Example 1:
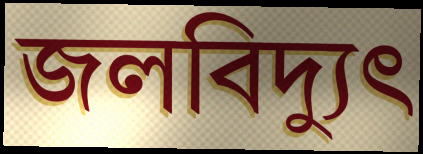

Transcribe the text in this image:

জলবিদ্যুৎ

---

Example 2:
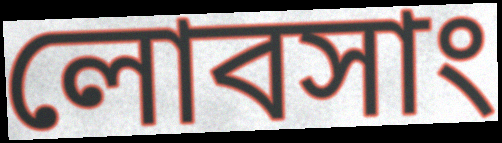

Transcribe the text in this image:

লোবসাং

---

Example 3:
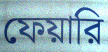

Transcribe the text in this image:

ফেয়ারি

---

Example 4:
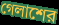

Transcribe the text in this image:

গেলাশের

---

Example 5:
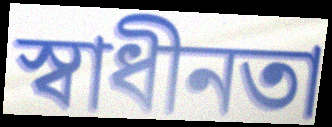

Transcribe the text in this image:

স্বাধীনতা